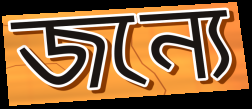
জন্যে